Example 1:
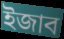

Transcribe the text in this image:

ইজাব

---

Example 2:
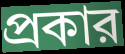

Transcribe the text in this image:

প্রকার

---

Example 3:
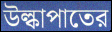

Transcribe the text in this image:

উল্কাপাতের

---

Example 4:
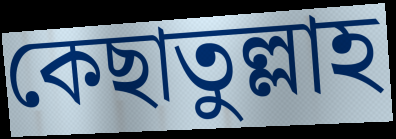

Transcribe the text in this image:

কেছাতুল্লাহ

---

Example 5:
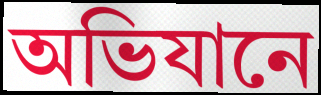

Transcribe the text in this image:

অভিযানে